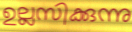
ഉല്ലസിക്കുന്നു